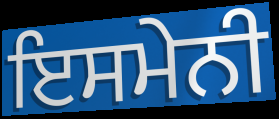
ਇਸਮੇਨੀ